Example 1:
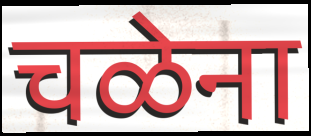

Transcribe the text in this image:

चळेना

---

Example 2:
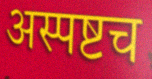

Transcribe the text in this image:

अस्पष्टच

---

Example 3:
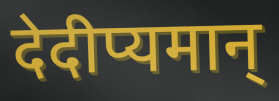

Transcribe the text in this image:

देदीप्यमान्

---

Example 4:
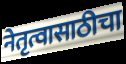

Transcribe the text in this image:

नेतृत्वासाठीचा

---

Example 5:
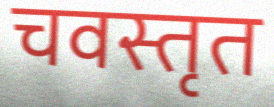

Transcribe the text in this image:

चवस्तृत